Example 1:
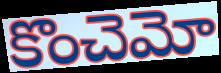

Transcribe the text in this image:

కొంచెమో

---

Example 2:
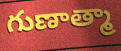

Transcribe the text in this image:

గుణాత్మా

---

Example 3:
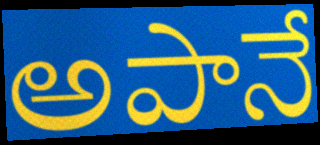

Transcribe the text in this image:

అపానే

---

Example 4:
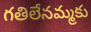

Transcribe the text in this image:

గతిలేనమ్మకు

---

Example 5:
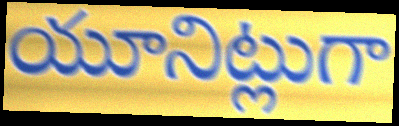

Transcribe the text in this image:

యూనిట్లుగా